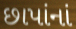
છાપાંનાં